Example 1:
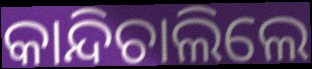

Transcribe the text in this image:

କାନ୍ଦିଚାଲିଲେ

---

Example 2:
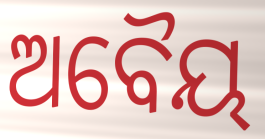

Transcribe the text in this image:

ଅବୈୟ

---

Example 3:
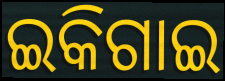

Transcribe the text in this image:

ଇକିଗାଇ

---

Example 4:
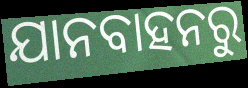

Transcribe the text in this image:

ଯାନବାହନରୁ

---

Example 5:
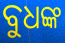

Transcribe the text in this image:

ବୁଧଙ୍କ